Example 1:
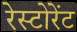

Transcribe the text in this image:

रेस्‍टोरेंट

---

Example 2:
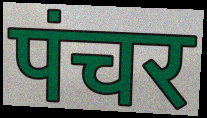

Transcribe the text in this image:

पंचर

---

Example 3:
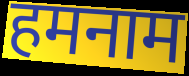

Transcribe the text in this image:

हमनाम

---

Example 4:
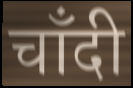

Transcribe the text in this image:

चाँदी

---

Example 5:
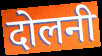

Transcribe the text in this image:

दोलनी